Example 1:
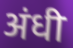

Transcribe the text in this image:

अंधी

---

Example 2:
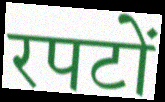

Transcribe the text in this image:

रपटों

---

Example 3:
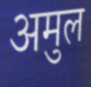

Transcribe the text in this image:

अमुल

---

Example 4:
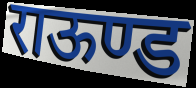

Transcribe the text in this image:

राऊण्ड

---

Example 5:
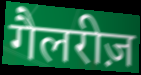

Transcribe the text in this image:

गैलरीज़